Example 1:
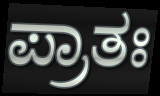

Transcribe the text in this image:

ಪ್ರಾತಃ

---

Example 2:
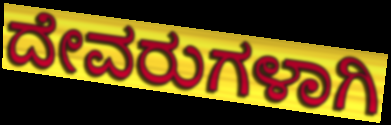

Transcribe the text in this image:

ದೇವರುಗಳಾಗಿ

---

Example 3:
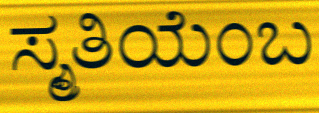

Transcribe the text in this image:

ಸ್ಮೃತಿಯೆಂಬ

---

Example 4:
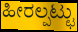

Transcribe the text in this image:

ಹೀರಲ್ಪಟ್ಟು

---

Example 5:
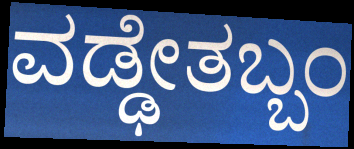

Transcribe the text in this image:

ವಡ್ಢೇತಬ್ಬಂ